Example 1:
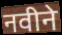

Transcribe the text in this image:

नवीने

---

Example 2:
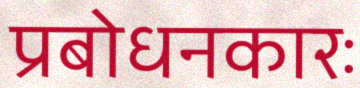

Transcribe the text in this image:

प्रबोधनकारः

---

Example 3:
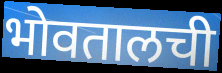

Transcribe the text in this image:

भोवतालची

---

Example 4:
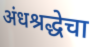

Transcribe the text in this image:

अंधश्रद्धेचा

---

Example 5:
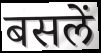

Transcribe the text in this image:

बसलें